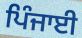
ਪਿੰਜਾਈ